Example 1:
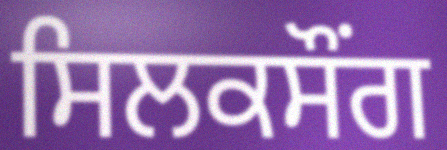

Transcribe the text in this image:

ਸਿਲਕਸੌਂਗ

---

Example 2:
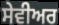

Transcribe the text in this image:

ਸੇਵੀਅਰ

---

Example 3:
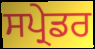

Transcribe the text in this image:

ਸਪ੍ਰੇਡਰ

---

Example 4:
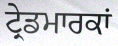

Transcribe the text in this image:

ਟ੍ਰੇਡਮਾਰਕਾਂ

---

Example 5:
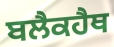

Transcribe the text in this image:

ਬਲੈਕਹੈਥ